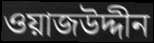
ওয়াজউদ্দীন